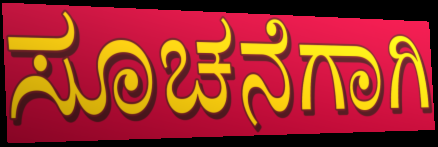
ಸೂಚನೆಗಾಗಿ